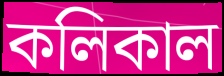
কলিকাল